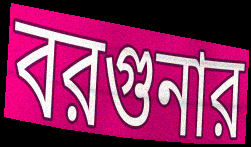
বরগুনার